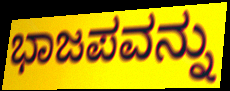
ಭಾಜಪವನ್ನು